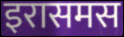
इरासमस